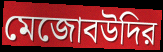
মেজোবউদির